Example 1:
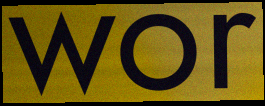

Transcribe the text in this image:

wor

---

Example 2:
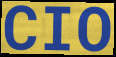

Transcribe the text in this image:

CIO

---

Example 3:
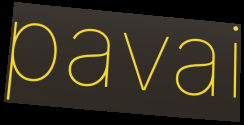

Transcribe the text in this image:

pavai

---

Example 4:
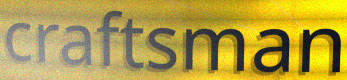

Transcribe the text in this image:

craftsman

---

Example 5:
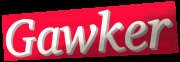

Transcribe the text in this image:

Gawker